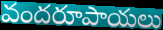
వందరూపాయలు